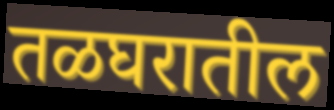
तळघरातील